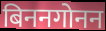
बिननगोनन